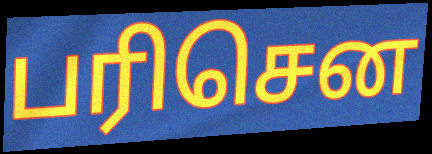
பரிசென